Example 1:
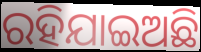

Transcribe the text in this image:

ରହିଯାଇଅଛି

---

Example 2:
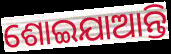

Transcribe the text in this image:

ଶୋଇଯାଆନ୍ତି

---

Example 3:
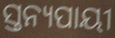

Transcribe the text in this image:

ସ୍ତନ୍ୟପାୟୀ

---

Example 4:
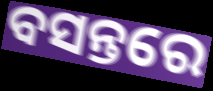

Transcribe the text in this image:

ବସନ୍ତରେ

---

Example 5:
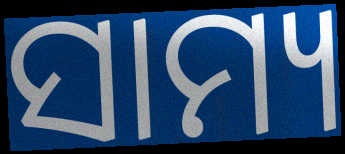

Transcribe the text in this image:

ସାମ୍ୟ